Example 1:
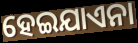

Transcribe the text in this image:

ହେଇଯାଏନା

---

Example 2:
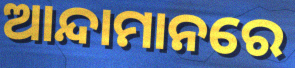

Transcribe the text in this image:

ଆନ୍ଦାମାନରେ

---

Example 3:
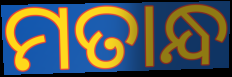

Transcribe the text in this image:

ମତାନ୍ଧ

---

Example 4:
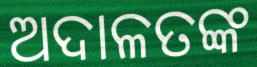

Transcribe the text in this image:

ଅଦାଳତଙ୍କ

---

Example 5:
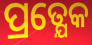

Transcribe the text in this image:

ପ୍ରତ୍ଯେକ